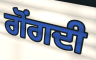
ਗੋਂਗਦੀ